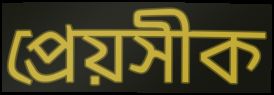
প্ৰেয়সীক